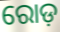
ରୋଡ଼